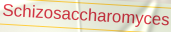
Schizosaccharomyces